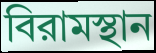
বিরামস্থান